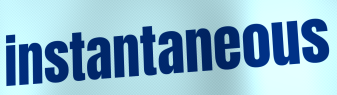
instantaneous